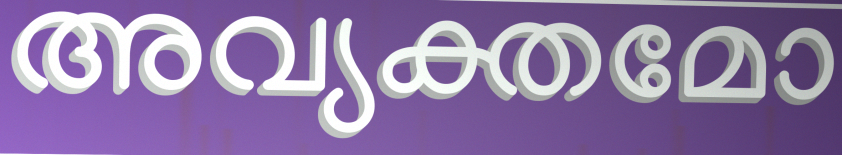
അവ്യക്തമോ